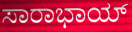
ಸಾರಾಭಾಯ್